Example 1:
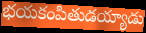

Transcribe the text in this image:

భయకంపితుడయ్యాడు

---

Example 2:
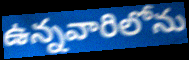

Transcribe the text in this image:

ఉన్నవారిలోను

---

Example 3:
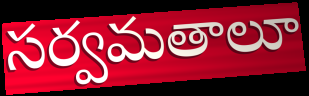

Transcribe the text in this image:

సర్వమతాలూ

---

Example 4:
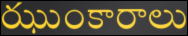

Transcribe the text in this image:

ఝుంకారాలు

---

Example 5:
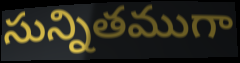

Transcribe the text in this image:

సున్నితముగా